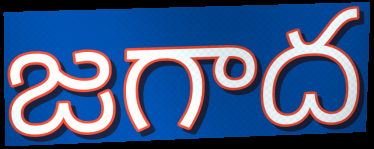
జగాద